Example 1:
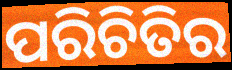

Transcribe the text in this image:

ପରିଚିତିର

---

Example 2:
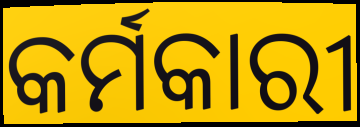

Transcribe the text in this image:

କର୍ମକାରୀ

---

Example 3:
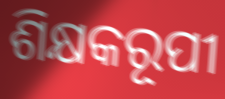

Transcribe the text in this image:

ଶିକ୍ଷକରୂପୀ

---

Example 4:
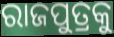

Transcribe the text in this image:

ରାଜପୁତ୍ରକୁ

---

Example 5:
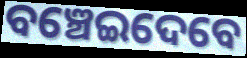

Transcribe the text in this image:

ବଞ୍ଚେଇଦେବେ